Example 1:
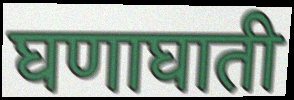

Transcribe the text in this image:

घणाघाती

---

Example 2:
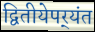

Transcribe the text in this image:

द्वितीयेपर्यंत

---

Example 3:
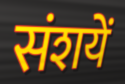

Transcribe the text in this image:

संशयें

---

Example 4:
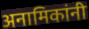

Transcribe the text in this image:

अनामिकांनी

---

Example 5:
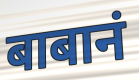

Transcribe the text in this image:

बाबानं